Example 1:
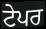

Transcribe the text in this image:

ਟੇਪਰ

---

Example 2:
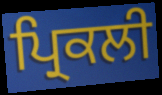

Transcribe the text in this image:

ਪ੍ਰਿਕਲੀ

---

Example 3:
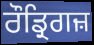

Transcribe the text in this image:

ਰੌਡ੍ਰਿਗਜ਼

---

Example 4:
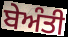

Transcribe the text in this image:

ਬੇਅੰਤੀ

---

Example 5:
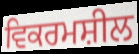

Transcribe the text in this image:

ਵਿਕਰਮਸ਼ੀਲ